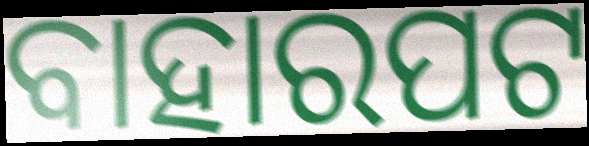
ବାହାରପଟ